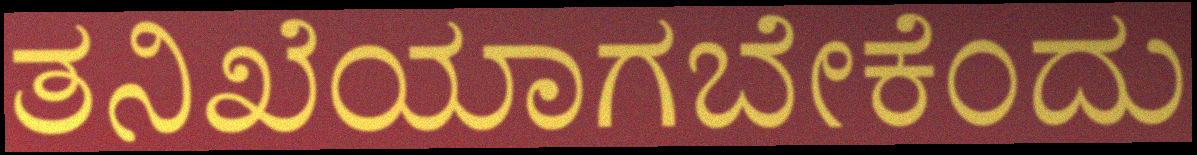
ತನಿಖೆಯಾಗಬೇಕೆಂದು